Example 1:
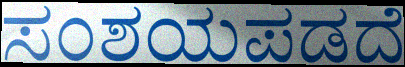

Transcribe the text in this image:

ಸಂಶಯಪಡದೆ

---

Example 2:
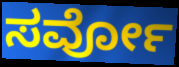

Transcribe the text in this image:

ಸರ್ವೋ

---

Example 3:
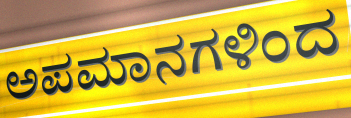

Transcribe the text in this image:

ಅಪಮಾನಗಳಿಂದ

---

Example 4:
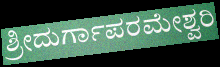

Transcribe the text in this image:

ಶ್ರೀದುರ್ಗಾಪರಮೇಶ್ವರಿ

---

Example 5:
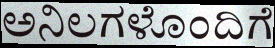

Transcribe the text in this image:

ಅನಿಲಗಳೊಂದಿಗೆ